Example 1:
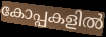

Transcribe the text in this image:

കോപ്പകളിൽ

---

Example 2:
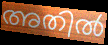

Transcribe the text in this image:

അതിൽ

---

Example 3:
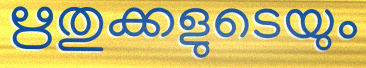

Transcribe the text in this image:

ഋതുക്കളുടെയും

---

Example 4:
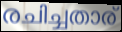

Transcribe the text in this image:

രചിച്ചതാര്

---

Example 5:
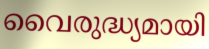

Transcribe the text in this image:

വൈരുദ്ധ്യമായി